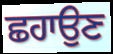
ਛਹਾਉਣ